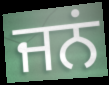
ਜਨਂ